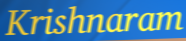
Krishnaram